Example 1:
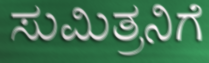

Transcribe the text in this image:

ಸುಮಿತ್ರನಿಗೆ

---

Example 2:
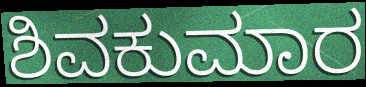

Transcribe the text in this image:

ಶಿವಕುಮಾರ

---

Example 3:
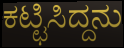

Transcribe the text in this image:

ಕಟ್ಟಿಸಿದ್ದನು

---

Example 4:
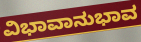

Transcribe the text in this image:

ವಿಭಾವಾನುಭಾವ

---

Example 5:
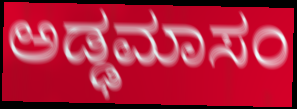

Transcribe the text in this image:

ಅಡ್ಢಮಾಸಂ